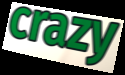
crazy